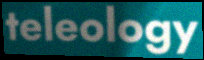
teleology